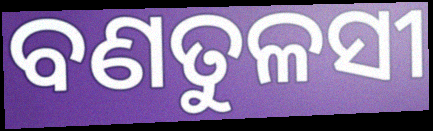
ବଣତୁଳସୀ